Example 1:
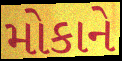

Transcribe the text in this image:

મોકાને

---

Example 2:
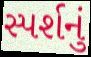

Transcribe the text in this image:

સ્પર્શનું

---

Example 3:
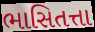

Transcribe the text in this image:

ભાસિતત્તા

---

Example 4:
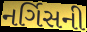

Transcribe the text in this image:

નર્ગિસની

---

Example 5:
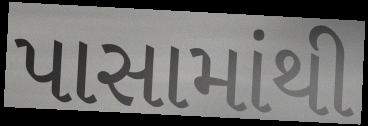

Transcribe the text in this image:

પાસામાંથી